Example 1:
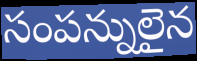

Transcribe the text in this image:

సంపన్నులైన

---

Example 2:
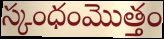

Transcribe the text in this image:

స్కంధంమొత్తం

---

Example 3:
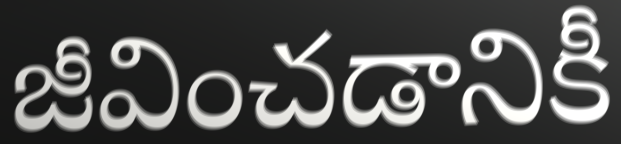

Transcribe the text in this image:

జీవించడానికీ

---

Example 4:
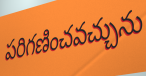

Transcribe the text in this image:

పరిగణించవచ్చును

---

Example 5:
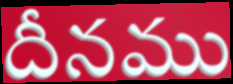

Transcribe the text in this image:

దీనము